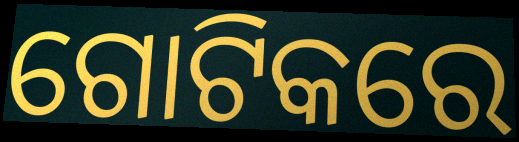
ଗୋଟିକରେ